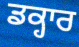
ਡਕ੍ਹਾਰ